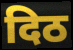
दिठ